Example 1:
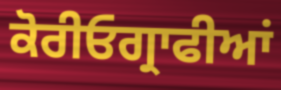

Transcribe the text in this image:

ਕੋਰੀਓਗ੍ਰਾਫੀਆਂ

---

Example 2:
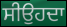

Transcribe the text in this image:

ਸੀਉਹਦਾ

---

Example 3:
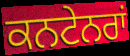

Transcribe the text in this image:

ਕਨਟੇਨਰਾਂ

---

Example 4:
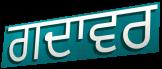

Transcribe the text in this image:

ਗਦਾਵਰ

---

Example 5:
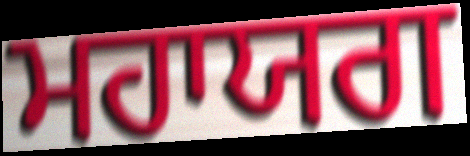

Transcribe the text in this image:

ਮਹਾਯਗ